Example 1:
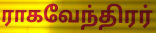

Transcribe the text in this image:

ராகவேந்திரர்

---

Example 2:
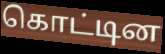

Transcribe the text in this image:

கொட்டின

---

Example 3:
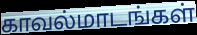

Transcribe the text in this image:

காவல்மாடங்கள்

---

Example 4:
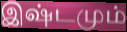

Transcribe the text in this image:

இஷ்டமும்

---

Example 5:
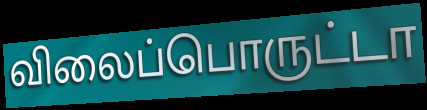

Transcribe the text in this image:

விலைப்பொருட்டா